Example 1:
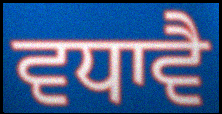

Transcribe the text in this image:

ਵਧਾਵੈ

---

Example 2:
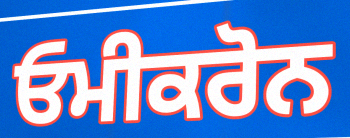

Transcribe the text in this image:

ਓਮੀਕਰੋਨ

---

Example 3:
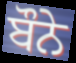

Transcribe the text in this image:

ਬੌਨੇ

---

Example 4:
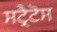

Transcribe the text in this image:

ਸਟ੍ਰੈਟੋਸ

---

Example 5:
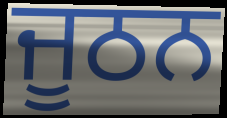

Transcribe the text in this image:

ਜੂਠਨ